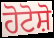
ਹੋਟੋਸ਼ੋ